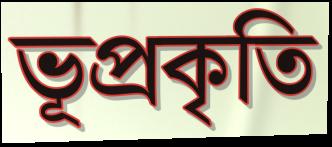
ভূপ্রকৃতি